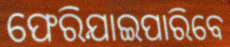
ଫେରିଯାଇପାରିବେ